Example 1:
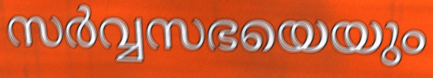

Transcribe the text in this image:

സർവ്വസഭയെയും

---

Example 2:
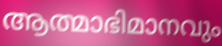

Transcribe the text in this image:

ആത്മാഭിമാനവും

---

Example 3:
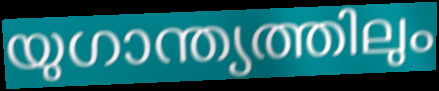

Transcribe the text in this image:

യുഗാന്ത്യത്തിലും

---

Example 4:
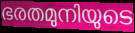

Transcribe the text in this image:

ഭരതമുനിയുടെ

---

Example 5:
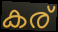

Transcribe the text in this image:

കര്